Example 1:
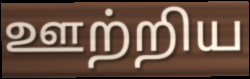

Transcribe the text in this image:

ஊற்றிய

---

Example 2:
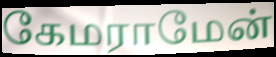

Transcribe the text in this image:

கேமராமேன்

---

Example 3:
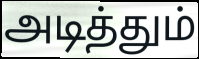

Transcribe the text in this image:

அடித்தும்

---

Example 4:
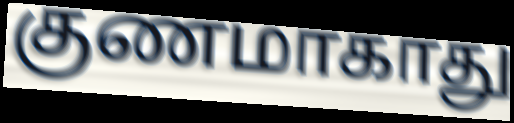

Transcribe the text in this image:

குணமாகாது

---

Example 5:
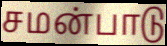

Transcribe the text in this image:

சமன்பாடு